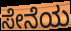
ಸೇನೆಯ